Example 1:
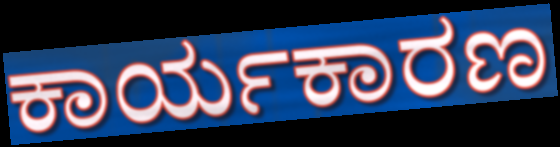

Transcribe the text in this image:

ಕಾರ್ಯಕಾರಣ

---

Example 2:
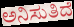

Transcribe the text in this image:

ಅನಿಸುತಿದೆ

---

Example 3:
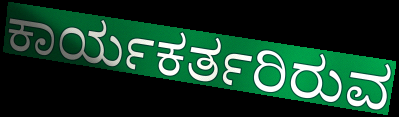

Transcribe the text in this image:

ಕಾರ್ಯಕರ್ತರಿರುವ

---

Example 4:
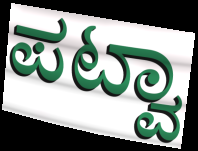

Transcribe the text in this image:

ಪಟ್ವಾ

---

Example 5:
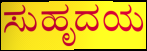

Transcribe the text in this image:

ಸುಹೃದಯ